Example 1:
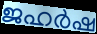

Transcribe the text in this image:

ജഹർഷ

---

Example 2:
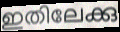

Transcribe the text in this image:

ഇതിലേക്കു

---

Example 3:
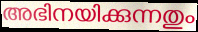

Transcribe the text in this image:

അഭിനയിക്കുന്നതും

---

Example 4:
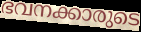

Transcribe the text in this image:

ഭവനക്കാരുടെ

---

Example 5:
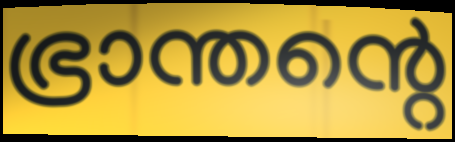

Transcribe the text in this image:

ഭ്രാന്തന്റെ